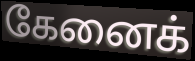
கேனைக்